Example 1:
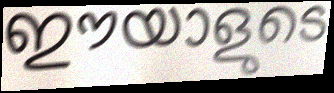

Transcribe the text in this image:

ഈയാളുടെ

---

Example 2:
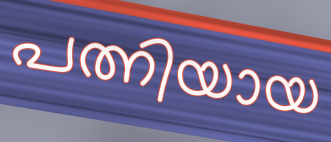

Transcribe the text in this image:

പത്നിയായ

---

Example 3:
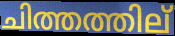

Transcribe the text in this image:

ചിത്തത്തില്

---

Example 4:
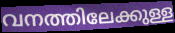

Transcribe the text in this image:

വനത്തിലേക്കുള്ള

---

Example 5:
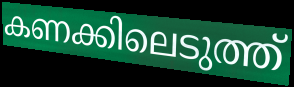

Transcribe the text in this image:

കണക്കിലെടുത്ത്